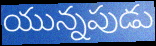
యున్నపుడు